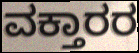
ವಕ್ತಾರರ